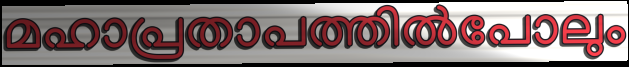
മഹാപ്രതാപത്തിൽപോലും